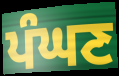
ਪੰਘਣ